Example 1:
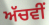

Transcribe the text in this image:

ਅੱਚਵੀਂ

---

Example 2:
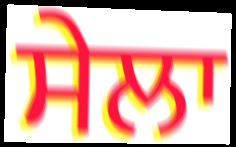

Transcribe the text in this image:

ਸੇਲਾ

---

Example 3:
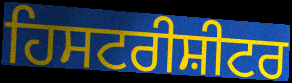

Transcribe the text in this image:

ਹਿਸਟਰੀਸ਼ੀਟਰ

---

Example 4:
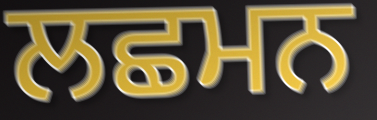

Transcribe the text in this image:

ਲਛਮਨ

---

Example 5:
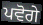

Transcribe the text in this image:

ਪਵੋਗੇ